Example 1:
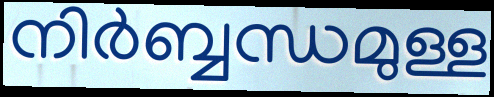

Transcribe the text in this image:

നിർബ്ബന്ധമുള്ള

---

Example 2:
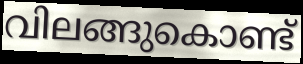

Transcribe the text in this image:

വിലങ്ങുകൊണ്ട്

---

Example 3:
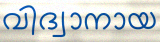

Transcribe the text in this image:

വിദ്വാനായ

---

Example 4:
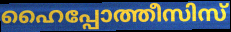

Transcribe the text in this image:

ഹൈപ്പോത്തീസിസ്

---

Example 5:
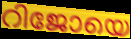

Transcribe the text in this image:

റിജോയെ